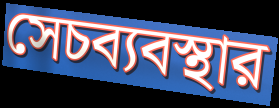
সেচব্যবস্থার